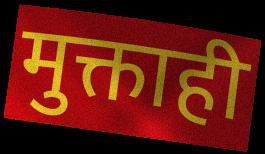
मुक्ताही